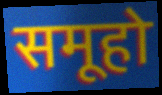
समूहो